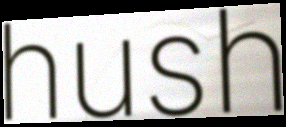
hush